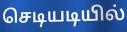
செடியடியில்